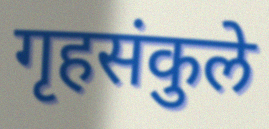
गृहसंकुले